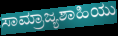
ಸಾಮ್ರಾಜ್ಯಶಾಹಿಯು